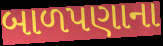
બાળપણાના